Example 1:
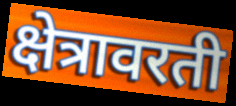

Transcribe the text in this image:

क्षेत्रावरती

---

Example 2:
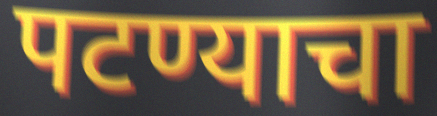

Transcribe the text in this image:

पटण्याचा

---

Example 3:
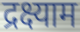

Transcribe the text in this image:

द्रक्ष्याम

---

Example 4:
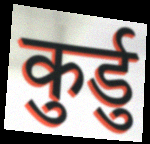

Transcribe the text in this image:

कुर्डु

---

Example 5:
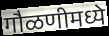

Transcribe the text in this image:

गौळणीमध्ये